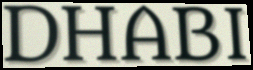
DHABI